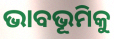
ଭାବଭୂମିକୁ